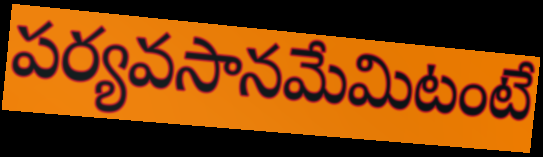
పర్యవసానమేమిటంటే